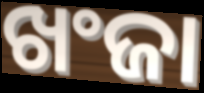
ଖଂଜା